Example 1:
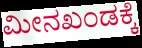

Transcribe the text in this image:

ಮೀನಖಂಡಕ್ಕೆ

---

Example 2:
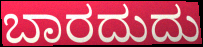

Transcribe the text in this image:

ಬಾರದುದು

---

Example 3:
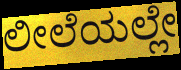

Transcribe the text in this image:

ಲೀಲೆಯಲ್ಲೇ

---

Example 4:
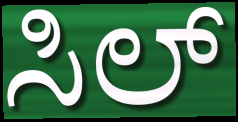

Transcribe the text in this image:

ಸಿಲ್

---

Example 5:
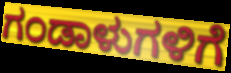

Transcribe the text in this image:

ಗಂಡಾಳುಗಳಿಗೆ